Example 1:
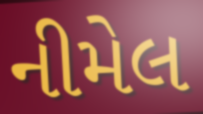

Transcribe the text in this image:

નીમેલ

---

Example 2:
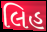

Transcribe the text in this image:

લિહ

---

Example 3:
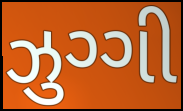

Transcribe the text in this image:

ઝુગ્ગી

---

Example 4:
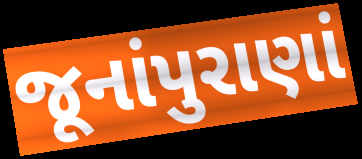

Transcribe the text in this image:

જૂનાંપુરાણાં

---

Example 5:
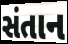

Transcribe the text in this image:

સંતાન